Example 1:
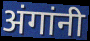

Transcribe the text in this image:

अंगांनी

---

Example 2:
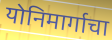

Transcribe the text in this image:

योनिमार्गाचा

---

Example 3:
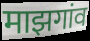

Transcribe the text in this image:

माझगांव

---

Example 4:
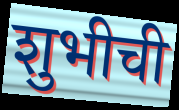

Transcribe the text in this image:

शुभीची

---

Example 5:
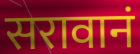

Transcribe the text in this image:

सरावानं